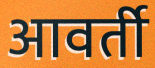
आवर्ती